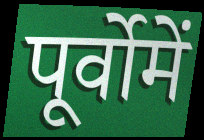
पूर्वोमें